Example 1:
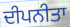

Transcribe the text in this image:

ਦੀਪਨੀਤਾ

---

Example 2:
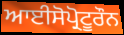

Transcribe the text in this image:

ਆਈਸੋਪ੍ਰੋਟੂਰੌਨ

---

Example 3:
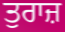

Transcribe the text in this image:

ਤੁਰਾਜ਼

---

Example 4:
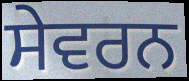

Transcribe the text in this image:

ਸੇਵਰਨ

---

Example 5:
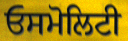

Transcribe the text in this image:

ਓਸਮੋਲਿਟੀ